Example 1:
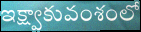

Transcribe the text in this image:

ఇక్ష్వాకువంశంలో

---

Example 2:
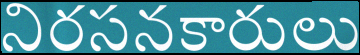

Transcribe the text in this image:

నిరసనకారులు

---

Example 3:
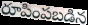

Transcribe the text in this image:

రూపింపబడిన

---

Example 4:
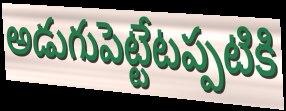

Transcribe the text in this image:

అడుగుపెట్టేటప్పటికి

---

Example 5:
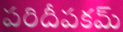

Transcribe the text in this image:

పరిదీపకమ్